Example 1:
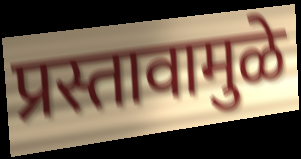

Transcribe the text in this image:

प्रस्तावामुळे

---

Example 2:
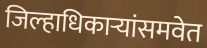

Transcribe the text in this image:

जिल्हाधिकाऱ्यांसमवेत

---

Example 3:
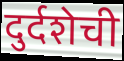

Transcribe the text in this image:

दुर्दशेची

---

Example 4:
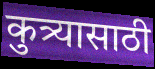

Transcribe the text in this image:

कुत्र्यासाठी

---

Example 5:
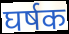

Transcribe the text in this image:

घर्षक